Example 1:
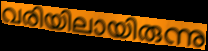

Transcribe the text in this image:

വരിയിലായിരുന്നു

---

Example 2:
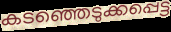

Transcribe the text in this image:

കടഞ്ഞെടുക്കപ്പെട്ട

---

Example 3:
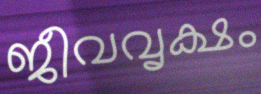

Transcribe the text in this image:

ജീവവൃക്ഷം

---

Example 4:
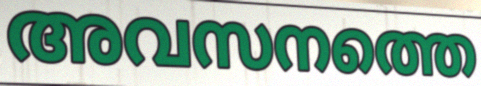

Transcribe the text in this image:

അവസനത്തെ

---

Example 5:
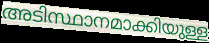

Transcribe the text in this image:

അടിസ്ഥാനമാക്കിയുള്ള